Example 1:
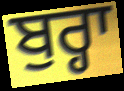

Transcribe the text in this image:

ਬੁਰ੍ਹਾ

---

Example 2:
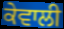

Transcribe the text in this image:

ਕੇਵਾਲੀ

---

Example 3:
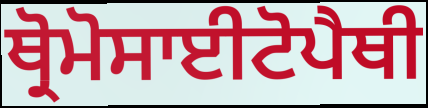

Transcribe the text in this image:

ਥ੍ਰੋਮੋਸਾਈਟੋਪੈਥੀ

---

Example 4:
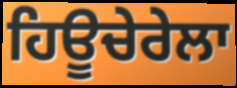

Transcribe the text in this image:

ਹਿਊਚੇਰੇਲਾ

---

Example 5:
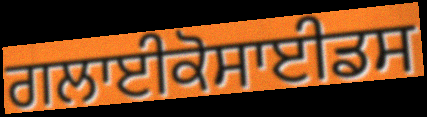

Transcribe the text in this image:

ਗਲਾਈਕੋਸਾਈਡਸ